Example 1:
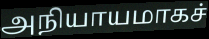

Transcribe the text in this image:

அநியாயமாகச்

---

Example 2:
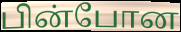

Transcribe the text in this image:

பின்போன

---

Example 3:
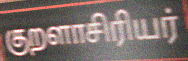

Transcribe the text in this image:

குறளாசிரியர்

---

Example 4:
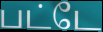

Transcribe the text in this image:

பட்டே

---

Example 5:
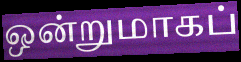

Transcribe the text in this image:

ஒன்றுமாகப்